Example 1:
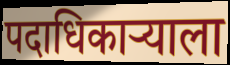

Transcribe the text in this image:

पदाधिकाऱ्याला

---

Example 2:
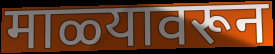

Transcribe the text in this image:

माळ्यावरून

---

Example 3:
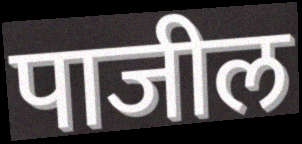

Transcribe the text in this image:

पाजील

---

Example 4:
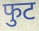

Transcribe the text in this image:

फुट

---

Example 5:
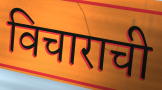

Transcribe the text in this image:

विचाराची